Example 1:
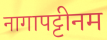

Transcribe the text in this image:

नागापट्टीनम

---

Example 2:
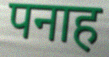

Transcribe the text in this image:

पनाह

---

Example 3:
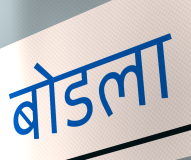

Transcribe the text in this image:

बोडला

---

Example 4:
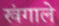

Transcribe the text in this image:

खंगाले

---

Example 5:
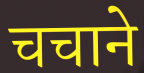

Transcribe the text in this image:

चचाने